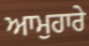
ਆਮੁਹਾਰੇ